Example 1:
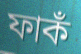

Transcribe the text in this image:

ফাকঁ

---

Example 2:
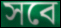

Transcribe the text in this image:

সবে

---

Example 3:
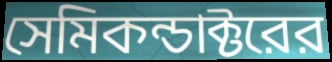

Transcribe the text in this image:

সেমিকন্ডাক্টরের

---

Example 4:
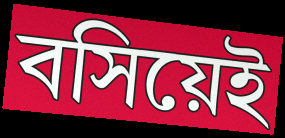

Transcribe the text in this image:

বসিয়েই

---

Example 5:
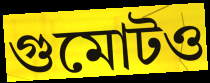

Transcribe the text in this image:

গুমোটও